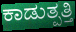
ಕಾಡುತ್ಪತ್ತಿ